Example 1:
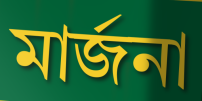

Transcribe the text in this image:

মার্জনা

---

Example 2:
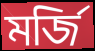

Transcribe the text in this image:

মর্জি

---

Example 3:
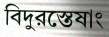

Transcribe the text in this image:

বিদুরস্তেষাং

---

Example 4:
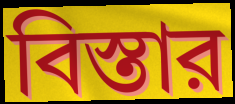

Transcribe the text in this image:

বিস্তার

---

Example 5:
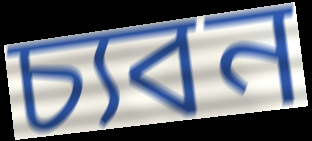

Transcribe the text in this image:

চ্যবন